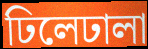
ঢিলেঢালা